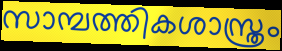
സാമ്പത്തികശാസ്ത്രം